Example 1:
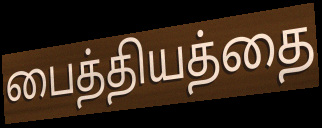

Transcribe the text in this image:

பைத்தியத்தை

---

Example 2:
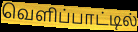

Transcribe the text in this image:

வெளிப்பாட்டில்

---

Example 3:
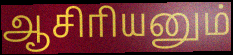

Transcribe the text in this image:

ஆசிரியனும்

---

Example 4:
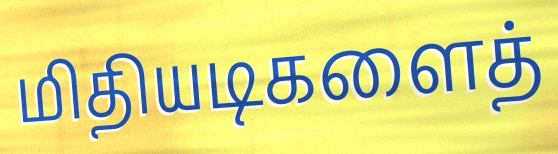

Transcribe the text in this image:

மிதியடிகளைத்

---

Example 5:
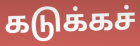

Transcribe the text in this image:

கடுக்கச்